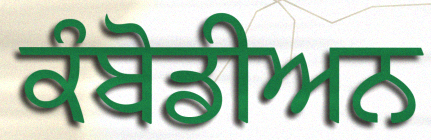
ਕੰਬੋਡੀਅਨ